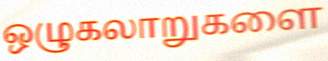
ஒழுகலாறுகளை